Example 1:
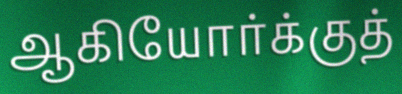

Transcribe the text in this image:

ஆகியோர்க்குத்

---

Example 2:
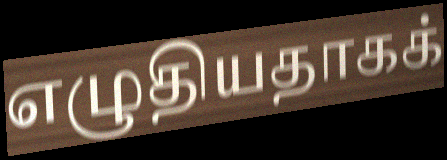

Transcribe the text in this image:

எழுதியதாகக்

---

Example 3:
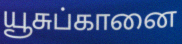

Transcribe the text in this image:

யூசுப்கானை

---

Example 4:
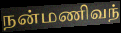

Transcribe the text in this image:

நன்மணிவந்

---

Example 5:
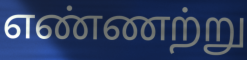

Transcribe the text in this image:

எண்ணற்று